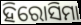
ହିରୋସିମା